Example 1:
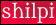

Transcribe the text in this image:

shilpi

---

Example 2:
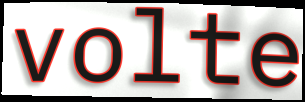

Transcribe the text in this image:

volte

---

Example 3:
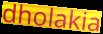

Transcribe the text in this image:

dholakia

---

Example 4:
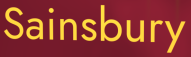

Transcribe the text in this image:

Sainsbury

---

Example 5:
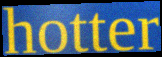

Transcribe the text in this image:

hotter